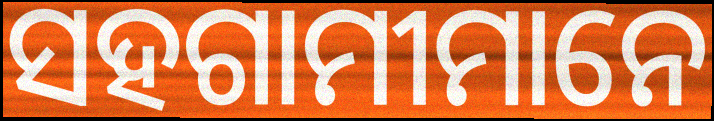
ସହଗାମୀମାନେ